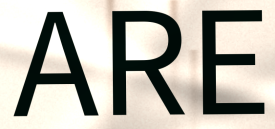
ARE